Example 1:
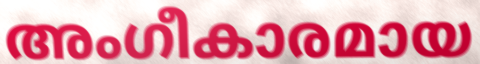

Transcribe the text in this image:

അംഗീകാരമായ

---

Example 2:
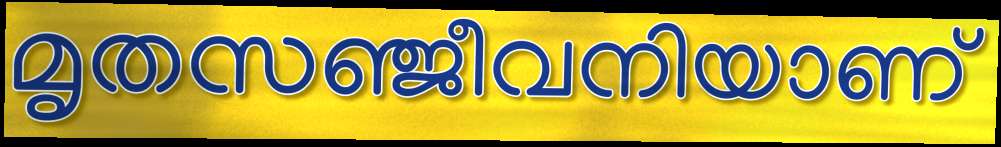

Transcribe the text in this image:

മൃതസഞ്ജീവനിയാണ്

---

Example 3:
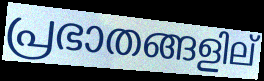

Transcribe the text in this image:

പ്രഭാതങ്ങളില്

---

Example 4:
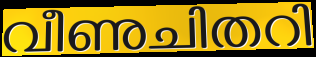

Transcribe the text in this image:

വീണുചിതറി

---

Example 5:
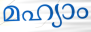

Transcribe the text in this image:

മഹ്യാം